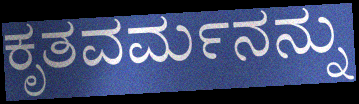
ಕೃತವರ್ಮನನ್ನು